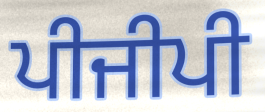
ਪੀਜੀਪੀ